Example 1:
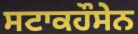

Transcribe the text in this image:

ਸਟਾਕਹੌਸੇਨ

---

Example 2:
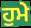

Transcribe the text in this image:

ਹੁਮੇ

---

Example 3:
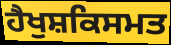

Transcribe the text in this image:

ਹੈਖੁਸ਼ਕਿਸਮਤ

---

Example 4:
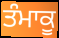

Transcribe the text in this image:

ਤੰਮਾਕੂ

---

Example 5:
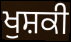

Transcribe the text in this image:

ਖੁਸ਼ਕੀ